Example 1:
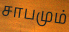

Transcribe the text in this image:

சாபமும்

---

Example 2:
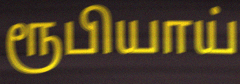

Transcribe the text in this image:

ரூபியாய்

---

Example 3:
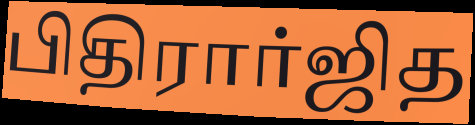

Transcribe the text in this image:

பிதிரார்ஜித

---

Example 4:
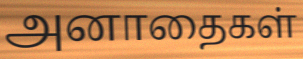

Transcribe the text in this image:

அனாதைகள்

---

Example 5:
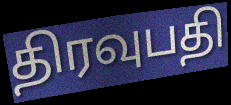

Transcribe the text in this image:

திரவுபதி